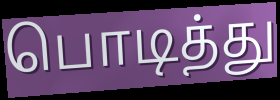
பொடித்து